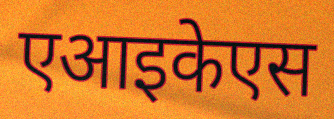
एआइकेएस